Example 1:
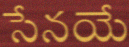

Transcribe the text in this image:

సేనయే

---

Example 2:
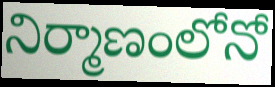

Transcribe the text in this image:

నిర్మాణంలోనో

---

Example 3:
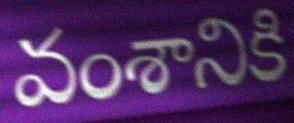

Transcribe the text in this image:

వంశానికి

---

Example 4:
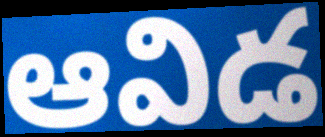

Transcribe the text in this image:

ఆవిడ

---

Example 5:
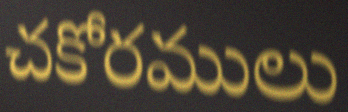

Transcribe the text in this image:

చకోరములు